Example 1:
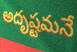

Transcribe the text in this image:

అదృష్టమనే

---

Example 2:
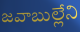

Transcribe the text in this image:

జవాబుల్లేని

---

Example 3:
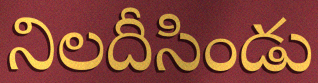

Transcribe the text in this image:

నిలదీసిండు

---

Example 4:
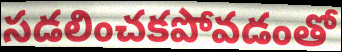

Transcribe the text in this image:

సడలించకపోవడంతో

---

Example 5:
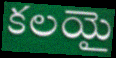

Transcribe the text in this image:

కలయై